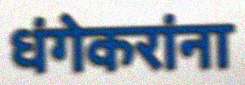
धंगेकरांना